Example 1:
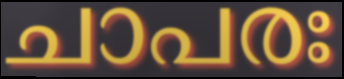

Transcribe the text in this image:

ചാപരഃ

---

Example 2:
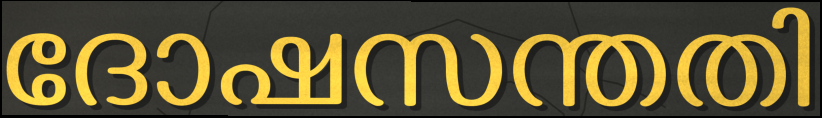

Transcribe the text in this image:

ദോഷസന്തതി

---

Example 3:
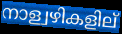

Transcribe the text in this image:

നാള്വഴികളില്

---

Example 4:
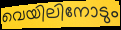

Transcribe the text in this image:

വെയിലിനോടും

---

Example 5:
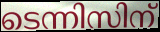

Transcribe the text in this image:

ടെന്നിസിന്